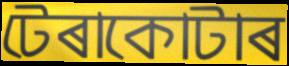
টেৰাকোটাৰ